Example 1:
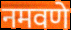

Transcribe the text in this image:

नमवणे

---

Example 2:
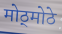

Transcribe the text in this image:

मोठ्मोठे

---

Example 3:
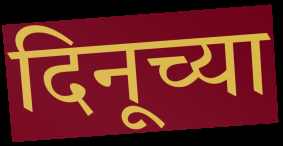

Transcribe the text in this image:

दिनूच्या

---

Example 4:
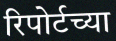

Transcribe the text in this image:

रिपोर्टच्या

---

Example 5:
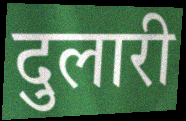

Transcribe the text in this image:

दुलारी